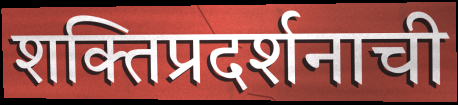
शक्तिप्रदर्शनाची